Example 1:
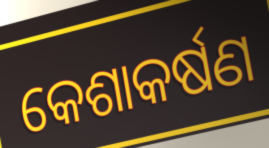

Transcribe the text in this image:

କେଶାକର୍ଷଣ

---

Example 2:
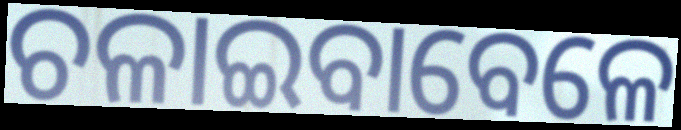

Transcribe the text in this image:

ଚଳାଇବାବେଳେ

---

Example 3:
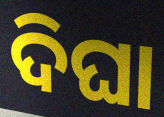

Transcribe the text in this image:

ଦିଘା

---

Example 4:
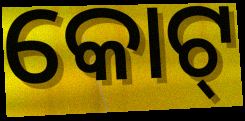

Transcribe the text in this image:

କୋଟ୍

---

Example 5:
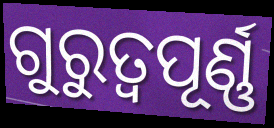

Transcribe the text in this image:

ଗୁରୁତ୍ବପୂର୍ଣ୍ଣ